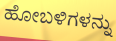
ಹೋಬಳಿಗಳನ್ನು